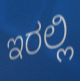
ಇರಲ್ಲಿ